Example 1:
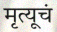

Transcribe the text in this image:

मृत्यूचं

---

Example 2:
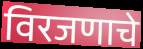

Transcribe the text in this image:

विरजणाचे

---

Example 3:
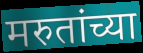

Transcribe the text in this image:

मरुतांच्या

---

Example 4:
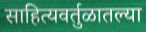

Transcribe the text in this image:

साहित्यवर्तुळातल्या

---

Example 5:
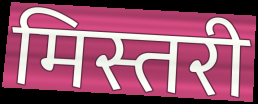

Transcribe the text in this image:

मिस्तरी